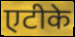
एटीके